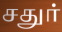
சதுர்